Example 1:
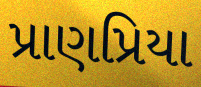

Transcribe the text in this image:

પ્રાણપ્રિયા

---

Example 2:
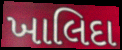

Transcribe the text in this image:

ખાલિદા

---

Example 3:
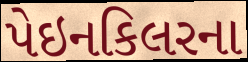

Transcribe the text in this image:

પેઇનકિલરના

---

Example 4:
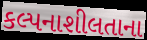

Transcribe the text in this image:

કલ્પનાશીલતાના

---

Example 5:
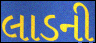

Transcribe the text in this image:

લાડની